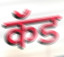
कॅड